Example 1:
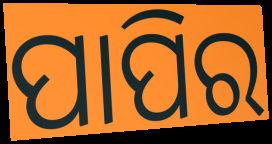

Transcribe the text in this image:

ପାପିର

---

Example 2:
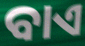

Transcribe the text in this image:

ବାଏ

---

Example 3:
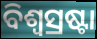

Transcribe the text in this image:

ବିଶ୍ୱସ୍ରଷ୍ଟା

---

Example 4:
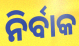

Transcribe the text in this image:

ନିର୍ବାକ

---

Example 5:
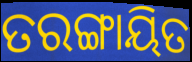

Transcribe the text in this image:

ତରଙ୍ଗାୟିତ